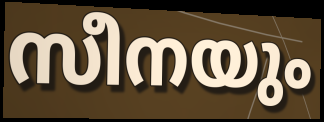
സീനയും